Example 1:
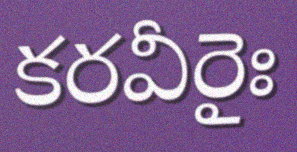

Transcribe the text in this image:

కరవీరైః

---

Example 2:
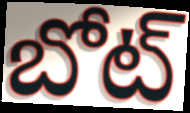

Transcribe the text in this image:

బోట్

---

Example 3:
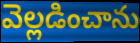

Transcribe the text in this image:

వెల్లడించాను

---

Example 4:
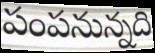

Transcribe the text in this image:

పంపనున్నది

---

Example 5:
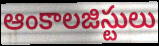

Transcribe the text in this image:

ఆంకాలజిస్టులు